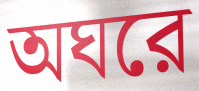
অঘরে